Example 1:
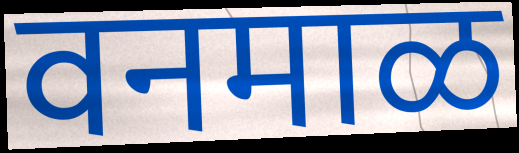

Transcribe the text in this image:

वनमाळ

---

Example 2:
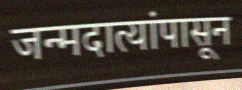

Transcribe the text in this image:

जन्मदात्यांपासून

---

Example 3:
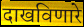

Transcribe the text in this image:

दाखविणारे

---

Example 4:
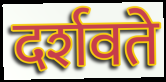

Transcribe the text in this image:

दर्शवते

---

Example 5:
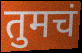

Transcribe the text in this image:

तुमचं